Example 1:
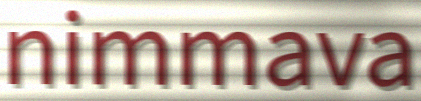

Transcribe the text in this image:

nimmava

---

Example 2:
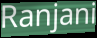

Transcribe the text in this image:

Ranjani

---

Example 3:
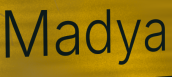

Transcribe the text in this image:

Madya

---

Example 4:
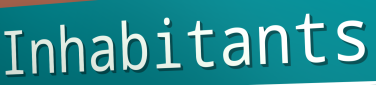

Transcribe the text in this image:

Inhabitants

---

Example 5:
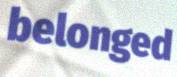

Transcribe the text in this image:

belonged